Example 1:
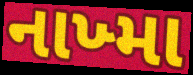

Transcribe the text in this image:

નાખ્મા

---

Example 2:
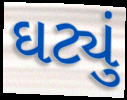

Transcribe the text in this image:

ઘટ્યું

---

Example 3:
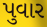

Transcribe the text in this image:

પુવાર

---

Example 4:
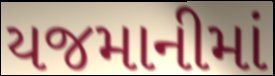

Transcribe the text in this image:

યજમાનીમાં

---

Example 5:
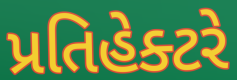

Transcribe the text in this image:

પ્રતિહેક્ટરે